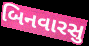
બિનવારસુ